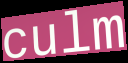
culm